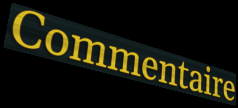
Commentaire